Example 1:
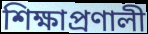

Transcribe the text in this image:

শিক্ষাপ্রণালী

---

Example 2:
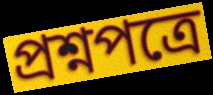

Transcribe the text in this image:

প্রশ্নপত্রে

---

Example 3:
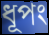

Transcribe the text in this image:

ধূপং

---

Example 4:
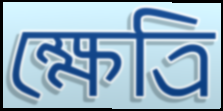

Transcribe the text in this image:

ক্ষেত্রি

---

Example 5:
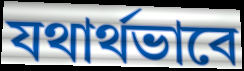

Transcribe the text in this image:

যথার্থভাবে